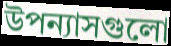
উপন্যাসগুলো